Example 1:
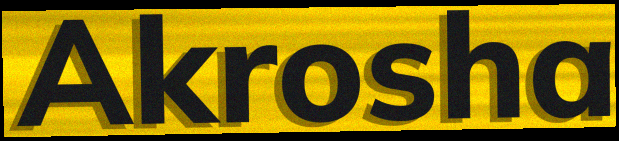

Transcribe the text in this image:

Akrosha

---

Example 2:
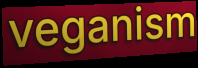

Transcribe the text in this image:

veganism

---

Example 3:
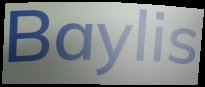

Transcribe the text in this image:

Baylis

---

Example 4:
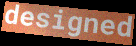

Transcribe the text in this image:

designed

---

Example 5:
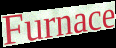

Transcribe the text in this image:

Furnace